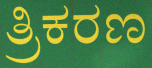
ತ್ರಿಕರಣ